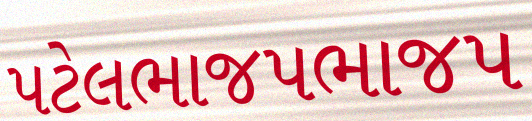
પટેલભાજપભાજપ